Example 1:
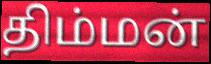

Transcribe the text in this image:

திம்மன்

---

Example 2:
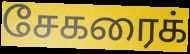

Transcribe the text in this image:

சேகரைக்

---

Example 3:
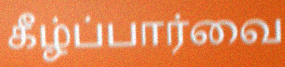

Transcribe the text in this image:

கீழ்ப்பார்வை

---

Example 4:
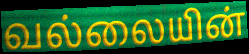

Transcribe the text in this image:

வல்லையின்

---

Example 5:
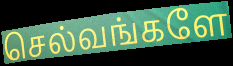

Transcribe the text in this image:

செல்வங்களே